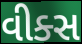
વીક્સ